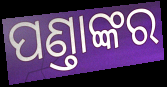
ପଣ୍ତାଙ୍କର